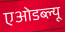
एओडब्ल्यू